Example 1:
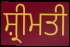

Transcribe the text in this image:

ਸ਼੍ਰੀਮਤੀ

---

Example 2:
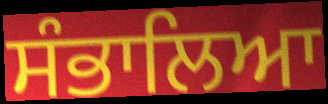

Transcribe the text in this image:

ਸੰਭਾਲਿਆ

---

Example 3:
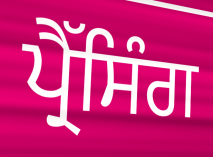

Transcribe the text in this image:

ਪ੍ਰੈੱਸਿੰਗ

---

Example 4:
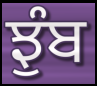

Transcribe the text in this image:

ਝੁੰਬ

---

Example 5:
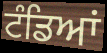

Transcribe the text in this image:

ਟੰਡਿਆਂ